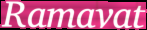
Ramavat